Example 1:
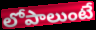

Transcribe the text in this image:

లోపాలుంటే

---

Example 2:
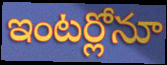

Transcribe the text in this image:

ఇంటర్లోనూ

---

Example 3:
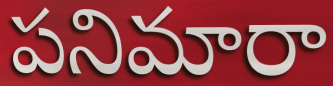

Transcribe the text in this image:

పనిమారా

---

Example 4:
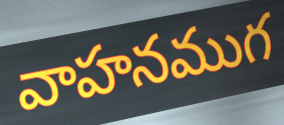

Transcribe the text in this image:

వాహనముగ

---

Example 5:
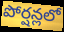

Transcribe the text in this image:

పోర్షన్లలో